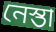
নেস্তা